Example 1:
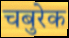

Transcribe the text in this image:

चबुरेक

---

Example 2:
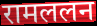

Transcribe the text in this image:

रामललन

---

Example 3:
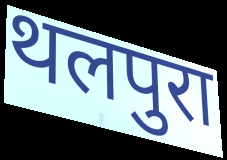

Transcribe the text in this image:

थलपुरा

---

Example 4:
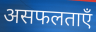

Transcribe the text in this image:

असफलताएँ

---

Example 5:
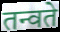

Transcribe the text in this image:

तन्वते